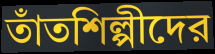
তাঁতশিল্পীদের